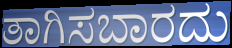
ತಾಗಿಸಬಾರದು